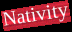
Nativity